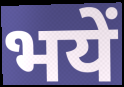
भयें